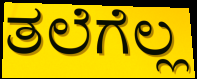
ತಲೆಗೆಲ್ಲ